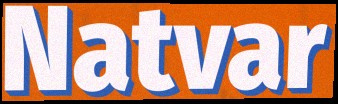
Natvar